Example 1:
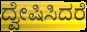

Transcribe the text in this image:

ದ್ವೇಷಿಸಿದರೆ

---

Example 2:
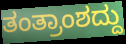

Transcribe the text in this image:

ತಂತ್ರಾಂಶದ್ದು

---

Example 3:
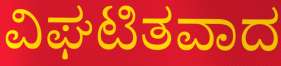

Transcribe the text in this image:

ವಿಘಟಿತವಾದ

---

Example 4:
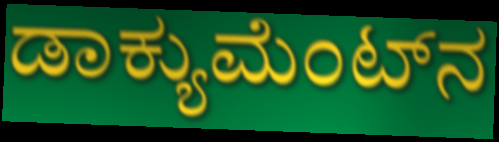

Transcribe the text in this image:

ಡಾಕ್ಯುಮೆಂಟ್‌ನ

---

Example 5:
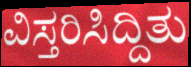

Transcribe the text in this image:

ವಿಸ್ತರಿಸಿದ್ದಿತು